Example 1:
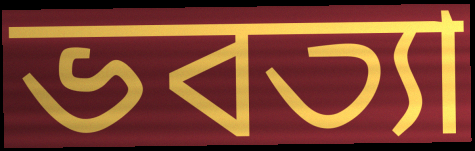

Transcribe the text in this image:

ভবত্যা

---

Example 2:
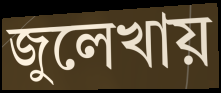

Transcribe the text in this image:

জুলেখায়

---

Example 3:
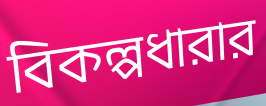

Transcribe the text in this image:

বিকল্পধারার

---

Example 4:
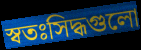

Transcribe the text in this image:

স্বতঃসিদ্ধগুলো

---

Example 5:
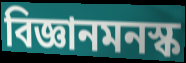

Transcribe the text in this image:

বিজ্ঞানমনস্ক